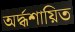
অর্দ্ধশায়িত